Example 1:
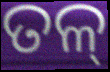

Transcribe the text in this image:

ତଳ୍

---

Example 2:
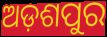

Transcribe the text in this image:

ଅଡ଼ଶପୁର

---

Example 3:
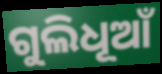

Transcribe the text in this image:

ଗୁଲିଧୂଆଁ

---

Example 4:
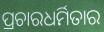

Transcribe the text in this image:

ପ୍ରଚାରଧର୍ମିତାର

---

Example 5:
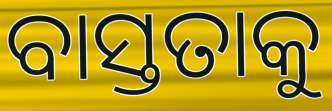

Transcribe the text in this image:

ବାସ୍ତତାକୁ